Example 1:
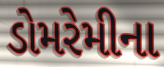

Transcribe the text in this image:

ડોમરેમીના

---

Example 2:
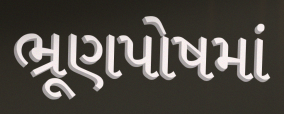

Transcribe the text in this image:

ભ્રૂણપોષમાં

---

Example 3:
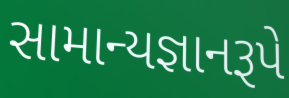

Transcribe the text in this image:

સામાન્યજ્ઞાનરૂપે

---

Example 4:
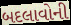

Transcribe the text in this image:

બદલાવોની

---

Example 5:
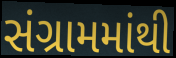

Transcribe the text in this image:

સંગ્રામમાંથી